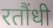
रतौंधी